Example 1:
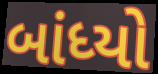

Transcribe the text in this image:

બાંધ્યો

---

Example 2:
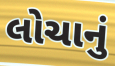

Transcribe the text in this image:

લોચાનું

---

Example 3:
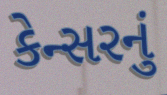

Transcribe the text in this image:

કેન્સરનું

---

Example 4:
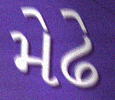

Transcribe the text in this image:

મેઢે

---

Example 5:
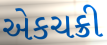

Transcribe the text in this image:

એકચક્રી